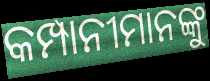
କମ୍ପାନୀମାନଙ୍କୁ